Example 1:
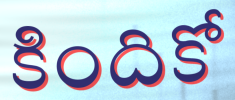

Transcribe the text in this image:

కిందికో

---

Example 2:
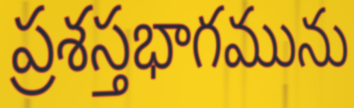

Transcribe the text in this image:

ప్రశస్తభాగమును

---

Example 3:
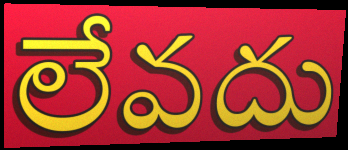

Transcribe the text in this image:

లేవదు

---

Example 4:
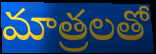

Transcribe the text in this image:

మాత్రలతో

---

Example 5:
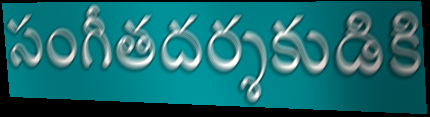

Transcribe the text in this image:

సంగీతదర్శకుడికి